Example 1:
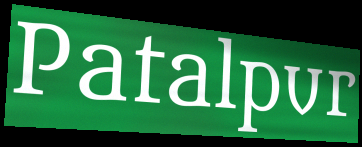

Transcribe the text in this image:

Patalpur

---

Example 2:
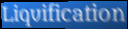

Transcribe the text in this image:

Liquification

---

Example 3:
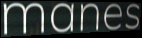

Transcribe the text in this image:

manes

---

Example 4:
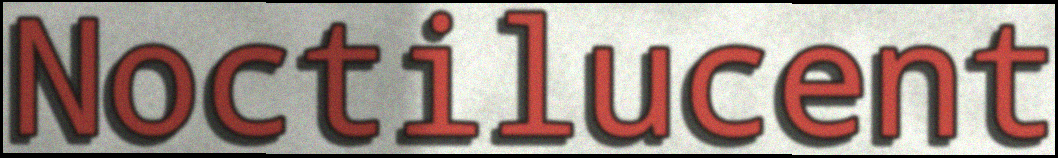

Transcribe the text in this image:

Noctilucent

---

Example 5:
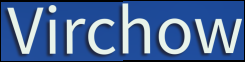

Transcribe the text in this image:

Virchow